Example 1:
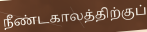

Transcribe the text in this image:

நீண்டகாலத்திற்குப்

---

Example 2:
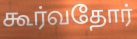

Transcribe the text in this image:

கூர்வதோர்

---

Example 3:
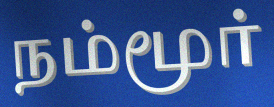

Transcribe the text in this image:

நம்மூர்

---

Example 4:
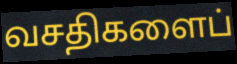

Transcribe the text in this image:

வசதிகளைப்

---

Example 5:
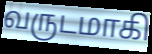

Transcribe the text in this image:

வருடமாகி